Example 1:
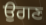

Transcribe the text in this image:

ਉਗਣ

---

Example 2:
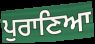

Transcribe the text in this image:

ਪੁਰਾਣਿਆ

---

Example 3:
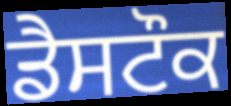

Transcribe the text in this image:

ਡੈਸਟੌਕ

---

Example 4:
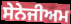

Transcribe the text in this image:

ਸੇਨੇਜੀਅਮ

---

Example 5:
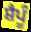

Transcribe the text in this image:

ਸ਼ੈਪੂੰ